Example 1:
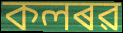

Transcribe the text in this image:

কলৰৱ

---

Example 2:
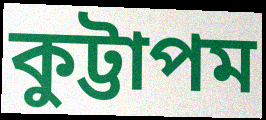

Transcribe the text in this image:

কুট্টাপম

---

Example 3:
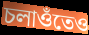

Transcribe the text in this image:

চলাওঁতেও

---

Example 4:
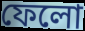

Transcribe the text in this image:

ফেলো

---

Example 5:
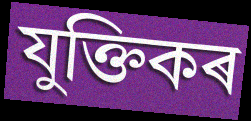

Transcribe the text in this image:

যুক্তিকৰ